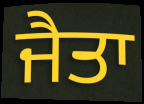
ਜੈਤਾ